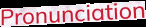
Pronunciation